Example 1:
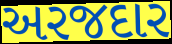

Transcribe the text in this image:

અરજદાર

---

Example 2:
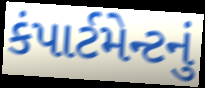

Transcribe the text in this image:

કંપાર્ટમેન્ટનું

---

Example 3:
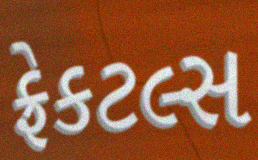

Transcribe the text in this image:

ફ્રેકટલ્સ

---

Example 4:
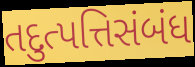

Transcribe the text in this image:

તદુત્પત્તિસંબંધ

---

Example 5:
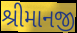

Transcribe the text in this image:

શ્રીમાનજી